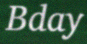
Bday